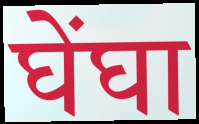
घेंघा